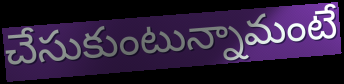
చేసుకుంటున్నామంటే